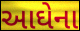
આઘેના